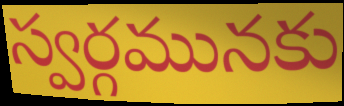
స్వర్గమునకు